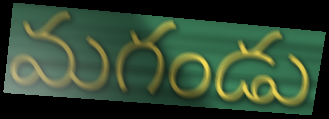
మగండు